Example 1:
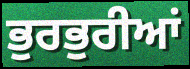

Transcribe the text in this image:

ਭੁਰਭੁਰੀਆਂ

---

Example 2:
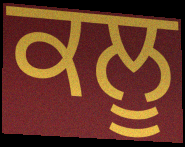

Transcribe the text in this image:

ਕਲੂ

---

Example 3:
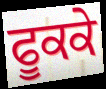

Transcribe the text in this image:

ਫੂਕਕੇ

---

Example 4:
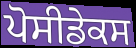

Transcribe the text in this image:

ਪੋਸੀਡੇਕਸ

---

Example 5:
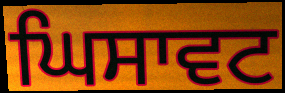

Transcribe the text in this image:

ਘਿਸਾਵਟ